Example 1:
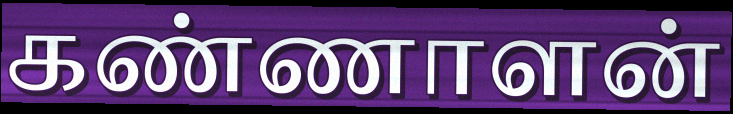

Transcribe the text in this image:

கண்ணாளன்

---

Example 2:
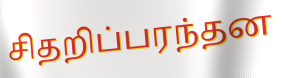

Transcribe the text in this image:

சிதறிப்பரந்தன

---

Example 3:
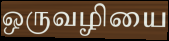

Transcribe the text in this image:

ஒருவழியை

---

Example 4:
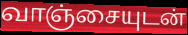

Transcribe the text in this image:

வாஞ்சையுடன்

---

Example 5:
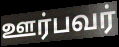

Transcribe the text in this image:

ஊர்பவர்